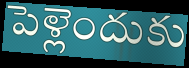
పెళ్లెందుకు